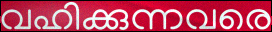
വഹിക്കുന്നവരെ